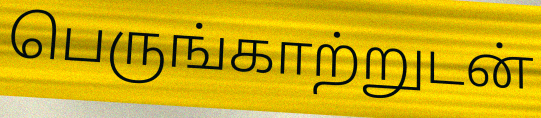
பெருங்காற்றுடன்